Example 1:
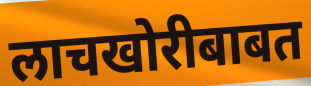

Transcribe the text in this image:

लाचखोरीबाबत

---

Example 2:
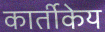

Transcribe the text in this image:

कार्तीकेय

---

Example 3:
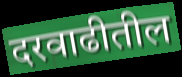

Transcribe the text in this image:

दरवाढीतील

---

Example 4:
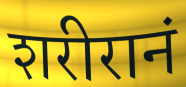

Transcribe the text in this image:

शरीरानं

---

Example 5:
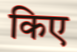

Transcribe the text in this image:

किए